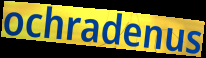
ochradenus